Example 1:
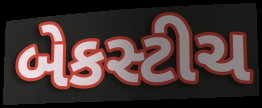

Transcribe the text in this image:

બેકસ્ટીચ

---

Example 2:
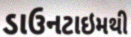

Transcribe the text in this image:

ડાઉનટાઇમથી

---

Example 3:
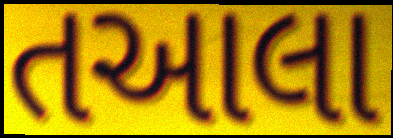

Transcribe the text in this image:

તઆલા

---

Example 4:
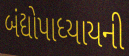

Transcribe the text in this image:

બંદ્યોપાધ્યાયની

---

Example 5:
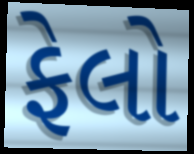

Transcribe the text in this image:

ફેલો